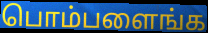
பொம்பளைங்க